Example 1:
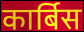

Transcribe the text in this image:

कार्बिस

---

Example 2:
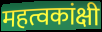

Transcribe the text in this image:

महत्वकांक्षी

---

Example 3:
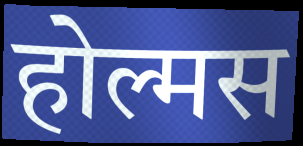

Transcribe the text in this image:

होल्मस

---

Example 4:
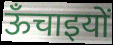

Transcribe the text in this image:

ऊँचाइयों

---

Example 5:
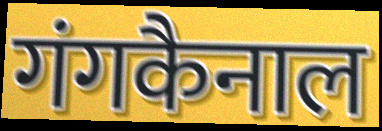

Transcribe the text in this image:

गंगकैनाल